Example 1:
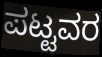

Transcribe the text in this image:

ಪಟ್ಟವರ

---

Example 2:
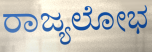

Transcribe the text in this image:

ರಾಜ್ಯಲೋಭ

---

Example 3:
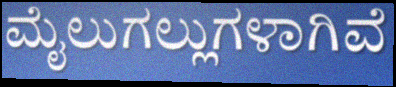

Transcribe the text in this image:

ಮೈಲುಗಲ್ಲುಗಳಾಗಿವೆ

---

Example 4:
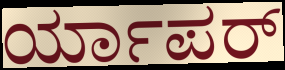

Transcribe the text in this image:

ರ್ಯಾಪರ್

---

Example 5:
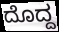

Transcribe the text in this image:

ದೊದ್ದ